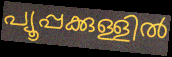
പ്യൂപ്പക്കുള്ളിൽ